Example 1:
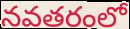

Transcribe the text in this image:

నవతరంలో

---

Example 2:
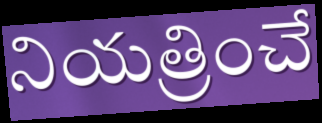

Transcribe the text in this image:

నియత్రించే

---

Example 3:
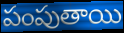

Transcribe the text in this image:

పంపుతాయి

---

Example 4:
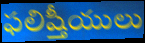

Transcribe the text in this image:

ఫలిష్తీయులు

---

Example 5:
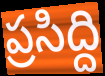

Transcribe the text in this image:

ప్రసిద్ది